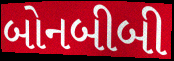
બોનબીબી